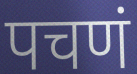
पचणं